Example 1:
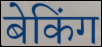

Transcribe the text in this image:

बेकिंग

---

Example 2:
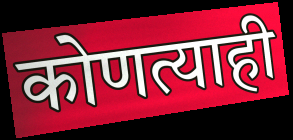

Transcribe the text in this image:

कोणत्याही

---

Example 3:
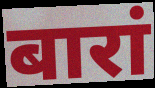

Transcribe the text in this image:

बारां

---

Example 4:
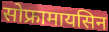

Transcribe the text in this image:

सोफ्रामायसिन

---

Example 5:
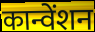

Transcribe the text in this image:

कान्वेंशन